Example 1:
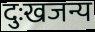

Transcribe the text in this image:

दुःखजन्य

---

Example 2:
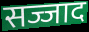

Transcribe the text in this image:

सज्‍जाद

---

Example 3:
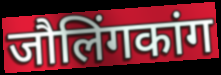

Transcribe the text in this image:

जौलिंगकांग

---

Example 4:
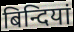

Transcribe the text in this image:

बिन्दियां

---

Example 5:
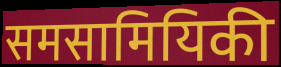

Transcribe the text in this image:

समसामियिकी